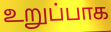
உறுப்பாக